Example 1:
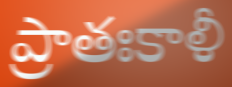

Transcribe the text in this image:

ప్రాతఃకాళీ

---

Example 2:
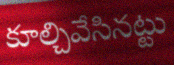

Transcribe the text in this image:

కూల్చివేసినట్టు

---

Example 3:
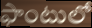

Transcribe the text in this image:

ఫాంటులో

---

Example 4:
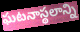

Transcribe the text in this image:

ఘటనాస్థలాన్ని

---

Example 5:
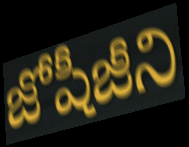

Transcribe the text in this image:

జోషీజీని